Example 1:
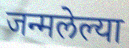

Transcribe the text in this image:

जन्मलेल्या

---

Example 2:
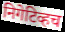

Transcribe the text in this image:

निगेटिव्हच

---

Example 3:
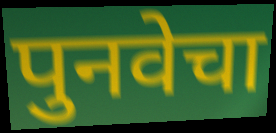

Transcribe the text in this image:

पुनवेचा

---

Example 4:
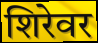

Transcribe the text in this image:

शिरेवर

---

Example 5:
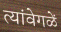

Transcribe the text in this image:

त्यांवेगळें